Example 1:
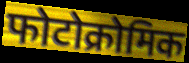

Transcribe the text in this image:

फोटोक्रोमिक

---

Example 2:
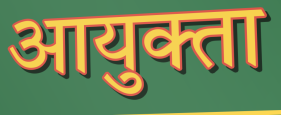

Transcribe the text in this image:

आयुक्ता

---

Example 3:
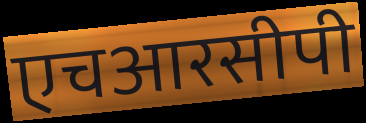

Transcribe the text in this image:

एचआरसीपी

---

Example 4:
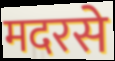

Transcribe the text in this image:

मदरसे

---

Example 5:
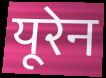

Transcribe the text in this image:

यूरेन